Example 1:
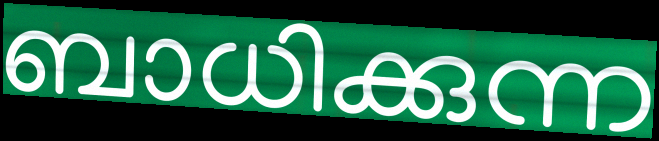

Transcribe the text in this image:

ബാധിക്കുന്ന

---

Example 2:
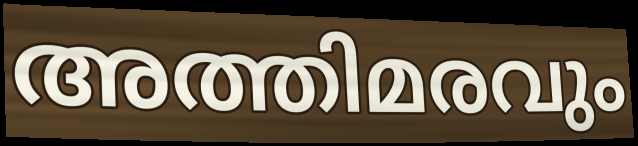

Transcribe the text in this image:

അത്തിമരവും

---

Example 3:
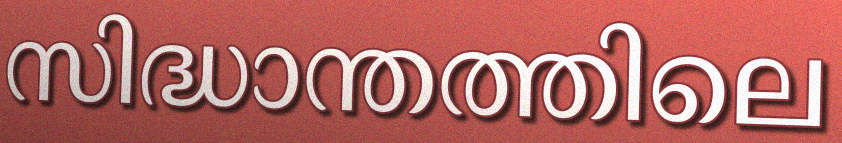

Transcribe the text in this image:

സിദ്ധാന്തത്തിലെ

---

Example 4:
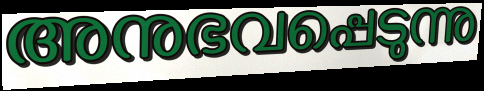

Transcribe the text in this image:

അനുഭവപ്പെടുന്നു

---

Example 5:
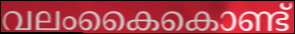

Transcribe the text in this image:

വലംകൈകൊണ്ട്